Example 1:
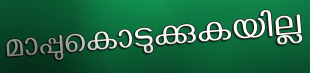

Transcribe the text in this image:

മാപ്പുകൊടുക്കുകയില്ല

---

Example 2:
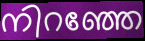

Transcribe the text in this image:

നിറഞ്ഞേ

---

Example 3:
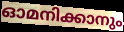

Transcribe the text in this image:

ഓമനിക്കാനും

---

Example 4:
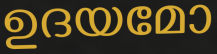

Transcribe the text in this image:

ഉദയമോ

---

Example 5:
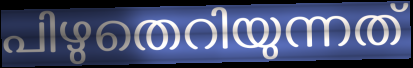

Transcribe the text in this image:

പിഴുതെറിയുന്നത്